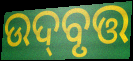
ଉଦ୍‌ବୃତ୍ତ